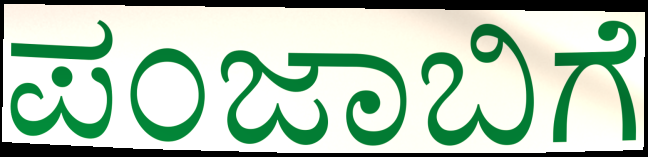
ಪಂಜಾಬಿಗೆ